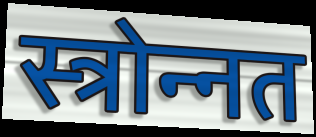
स्त्रोन्नत